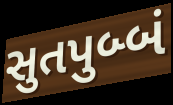
સુતપુબ્બં